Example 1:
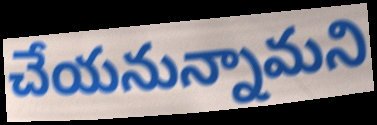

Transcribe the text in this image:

చేయనున్నామని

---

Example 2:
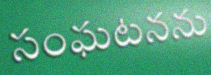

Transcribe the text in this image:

సంఘటనను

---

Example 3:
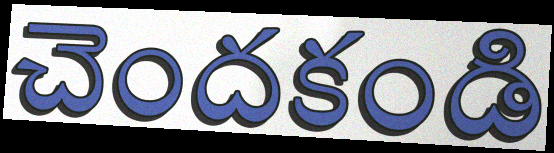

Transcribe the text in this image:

చెందకండి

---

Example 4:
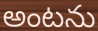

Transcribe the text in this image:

అంటను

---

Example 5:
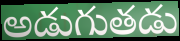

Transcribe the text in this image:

అడుగుతడు